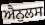
ਐਨੁਲਸ